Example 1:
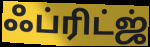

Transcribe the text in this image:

ஃப்ரிட்ஜ்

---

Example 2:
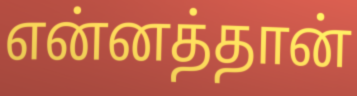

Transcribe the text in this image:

என்னத்தான்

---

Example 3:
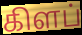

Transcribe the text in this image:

கிளப்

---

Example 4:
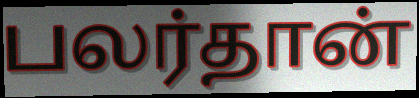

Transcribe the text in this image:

பலர்தான்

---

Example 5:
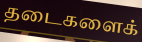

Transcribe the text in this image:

தடைகளைக்